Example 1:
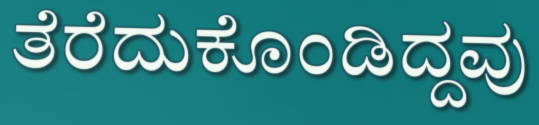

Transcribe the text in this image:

ತೆರೆದುಕೊಂಡಿದ್ದವು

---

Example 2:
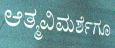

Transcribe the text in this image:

ಆತ್ಮವಿಮರ್ಶೆಗೂ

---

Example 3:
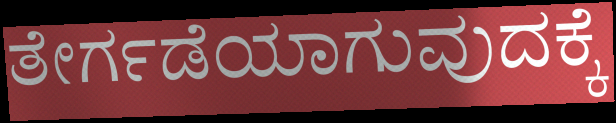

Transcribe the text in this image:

ತೇರ್ಗಡೆಯಾಗುವುದಕ್ಕೆ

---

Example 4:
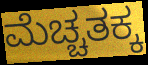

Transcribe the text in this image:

ಮೆಚ್ಚತಕ್ಕ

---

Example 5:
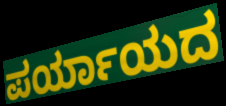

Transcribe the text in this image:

ಪರ್ಯಾಯದ